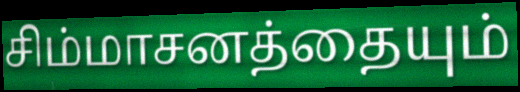
சிம்மாசனத்தையும்